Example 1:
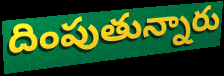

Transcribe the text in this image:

దింపుతున్నారు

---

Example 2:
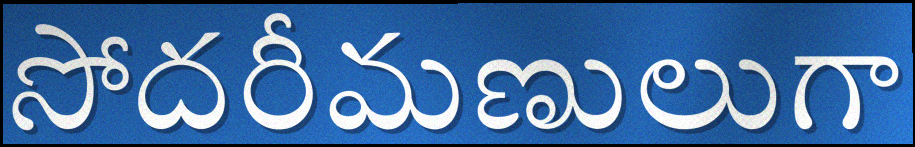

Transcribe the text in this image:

సోదరీమణులుగా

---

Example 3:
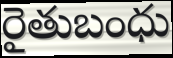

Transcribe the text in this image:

రైతుబంధు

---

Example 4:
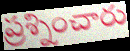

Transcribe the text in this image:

ప్రశ్నించారు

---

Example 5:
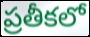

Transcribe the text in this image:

ప్రతీకలో